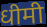
धीमी